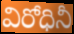
విరోధినీ